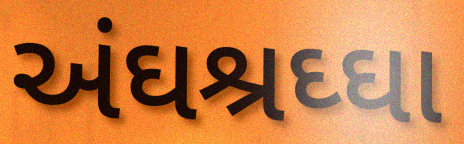
અંઘશ્રઘ્ઘા